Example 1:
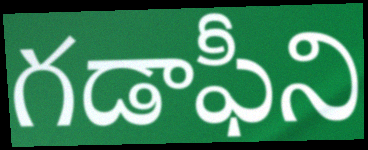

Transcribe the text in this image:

గడాఫీని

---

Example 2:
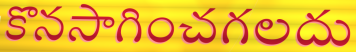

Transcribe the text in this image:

కొనసాగించగలదు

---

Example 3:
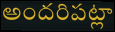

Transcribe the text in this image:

అందరిపట్లా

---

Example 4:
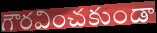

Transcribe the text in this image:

గౌరవించకుండా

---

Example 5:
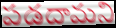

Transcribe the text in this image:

పడదామని